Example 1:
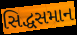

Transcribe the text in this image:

સિદ્ધસમાન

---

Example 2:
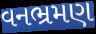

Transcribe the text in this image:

વનભ્રમણ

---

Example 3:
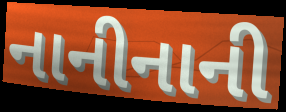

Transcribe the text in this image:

નાનીનાની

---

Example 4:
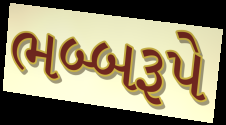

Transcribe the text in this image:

ભબ્બરૂપે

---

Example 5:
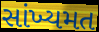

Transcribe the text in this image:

સાંખ્યમત